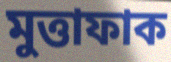
মুত্তাফাক